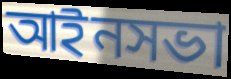
আইনসভা